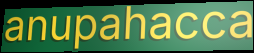
anupahacca